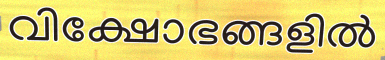
വിക്ഷോഭങ്ങളിൽ